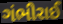
ગંભીરાઈ